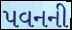
પવનની